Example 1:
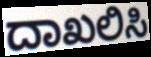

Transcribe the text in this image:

ದಾಖಲಿಸಿ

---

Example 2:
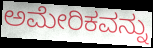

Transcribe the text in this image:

ಅಮೇರಿಕವನ್ನು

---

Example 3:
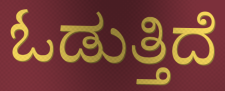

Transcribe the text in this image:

ಓಡುತ್ತಿದೆ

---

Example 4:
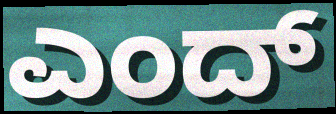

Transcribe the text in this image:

ಎಂದ್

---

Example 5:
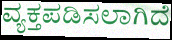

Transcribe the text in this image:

ವ್ಯಕ್ತಪಡಿಸಲಾಗಿದೆ